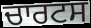
ਚਾਰਟਸ